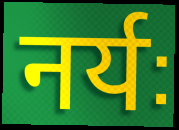
नर्यः